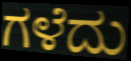
ಗಳೆದು